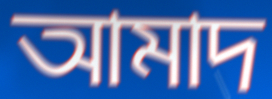
আমাদ